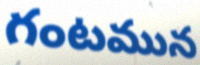
గంటమున